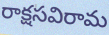
రాక్షసవిరామ